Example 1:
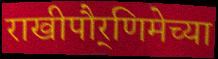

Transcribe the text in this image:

राखीपौर्णिमेच्या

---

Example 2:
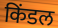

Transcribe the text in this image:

किंडल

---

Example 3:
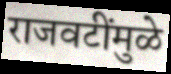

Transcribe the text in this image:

राजवटींमुळे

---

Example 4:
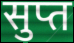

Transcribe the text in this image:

सुप्त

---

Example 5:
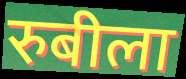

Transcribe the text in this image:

रुबीला